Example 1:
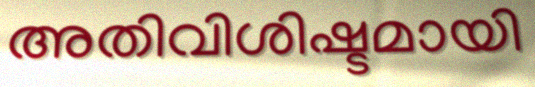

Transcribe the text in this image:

അതിവിശിഷ്ടമായി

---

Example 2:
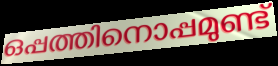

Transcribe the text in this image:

ഒപ്പത്തിനൊപ്പമുണ്ട്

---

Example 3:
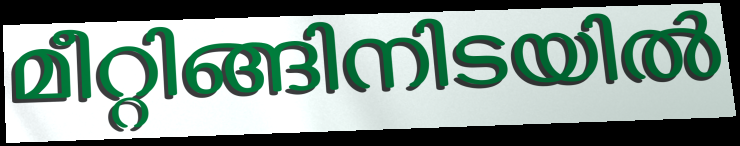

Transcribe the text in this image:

മീറ്റിങ്ങിനിടയിൽ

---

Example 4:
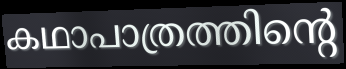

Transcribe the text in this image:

കഥാപാത്രത്തിന്റെ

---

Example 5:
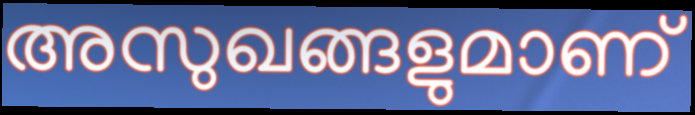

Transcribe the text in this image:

അസുഖങ്ങളുമാണ്